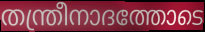
തന്ത്രീനാദത്തോടെ